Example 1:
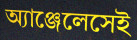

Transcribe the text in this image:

অ্যাঞ্জেলেসেই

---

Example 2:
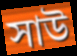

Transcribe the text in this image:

সাউ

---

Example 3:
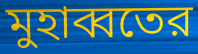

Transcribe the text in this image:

মুহাব্বতের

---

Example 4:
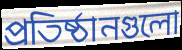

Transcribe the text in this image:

প্রতিষ্ঠানগুলো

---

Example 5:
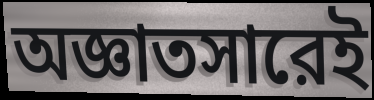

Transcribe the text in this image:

অজ্ঞাতসারেই